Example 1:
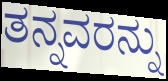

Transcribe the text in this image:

ತನ್ನವರನ್ನು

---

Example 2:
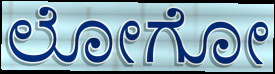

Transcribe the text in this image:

ಲೋಗೋ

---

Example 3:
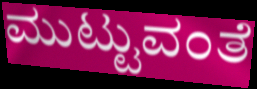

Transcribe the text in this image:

ಮುಟ್ಟುವಂತೆ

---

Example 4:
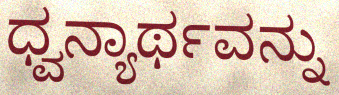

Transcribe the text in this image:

ಧ್ವನ್ಯಾರ್ಥವನ್ನು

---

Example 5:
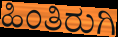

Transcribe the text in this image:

ಹಿಂತಿರುಗಿ